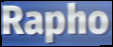
Rapho